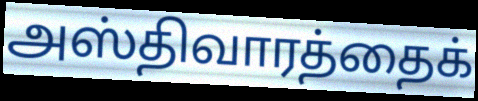
அஸ்திவாரத்தைக்